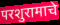
परशुरामाचे